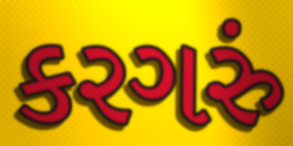
કરગરું